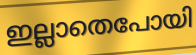
ഇല്ലാതെപോയി